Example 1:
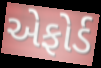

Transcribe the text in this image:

એફોર્ડ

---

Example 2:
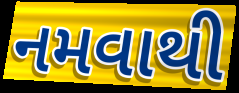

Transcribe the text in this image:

નમવાથી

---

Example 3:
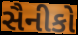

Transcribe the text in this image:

સૈનીકો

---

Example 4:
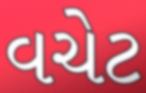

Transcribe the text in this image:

વચેટ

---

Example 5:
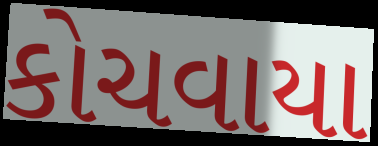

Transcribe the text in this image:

કોચવાયા